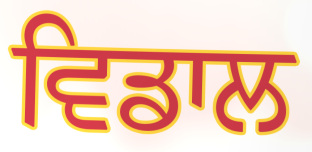
ਵਿਡਾਲ